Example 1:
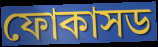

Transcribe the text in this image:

ফোকাসড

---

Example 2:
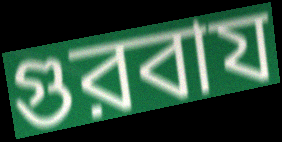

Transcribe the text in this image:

গুরবায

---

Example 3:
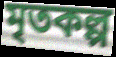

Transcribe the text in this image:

মৃতকল্প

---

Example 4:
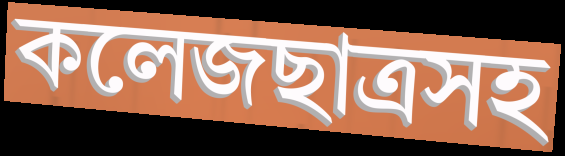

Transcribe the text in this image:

কলেজছাত্রসহ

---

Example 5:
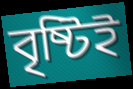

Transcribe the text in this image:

বৃষ্টিই